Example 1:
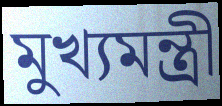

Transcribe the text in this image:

মুখ্যমন্ত্রী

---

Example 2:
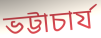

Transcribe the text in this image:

ভট্টাচার্য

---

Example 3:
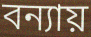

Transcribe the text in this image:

বন্যায়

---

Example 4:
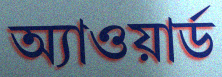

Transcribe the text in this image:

অ্যাওয়ার্ড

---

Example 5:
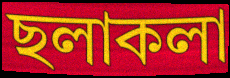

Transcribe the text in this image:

ছলাকলা